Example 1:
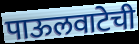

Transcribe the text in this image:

पाऊलवाटेची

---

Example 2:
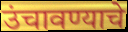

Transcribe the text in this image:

उंचावण्याचे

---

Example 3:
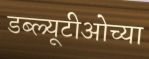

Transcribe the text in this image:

डब्ल्यूटीओच्या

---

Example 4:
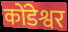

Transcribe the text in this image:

कोंडेश्वर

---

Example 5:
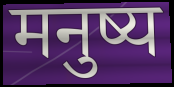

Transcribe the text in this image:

मनुष्य